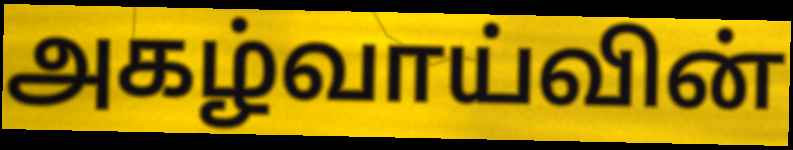
அகழ்வாய்வின்